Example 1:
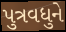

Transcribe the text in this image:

પુત્રવધુને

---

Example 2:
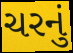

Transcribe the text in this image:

ચરનું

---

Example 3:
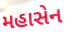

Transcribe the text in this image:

મહાસેન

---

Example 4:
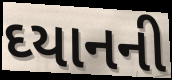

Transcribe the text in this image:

ઘ્યાનની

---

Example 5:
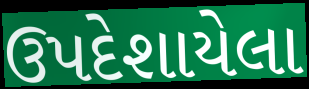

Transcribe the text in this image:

ઉપદેશાયેલા